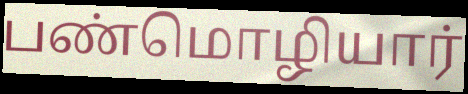
பண்மொழியார்